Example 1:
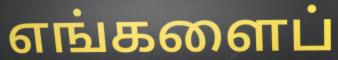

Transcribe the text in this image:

எங்களைப்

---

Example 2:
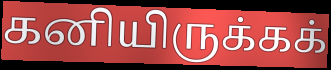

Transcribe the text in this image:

கனியிருக்கக்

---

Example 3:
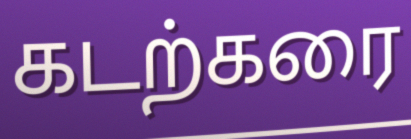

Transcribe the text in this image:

கடற்கரை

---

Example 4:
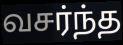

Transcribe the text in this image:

வசர்ந்த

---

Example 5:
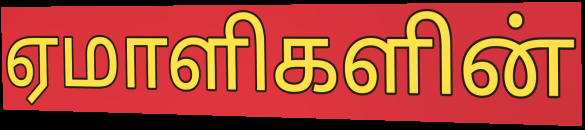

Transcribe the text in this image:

ஏமாளிகளின்